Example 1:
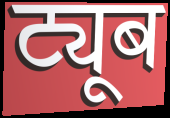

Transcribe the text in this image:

ट्यूब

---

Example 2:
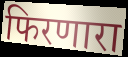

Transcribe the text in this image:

फिरणारा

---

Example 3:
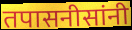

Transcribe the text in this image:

तपासनीसांनी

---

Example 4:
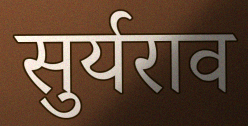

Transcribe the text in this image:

सुर्यराव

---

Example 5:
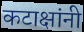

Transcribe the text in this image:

कटाक्षांनी